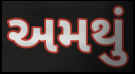
અમથું